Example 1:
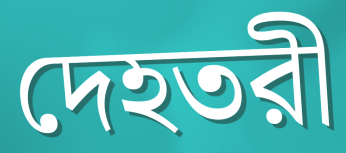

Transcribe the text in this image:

দেহতরী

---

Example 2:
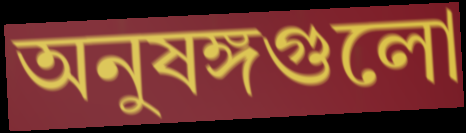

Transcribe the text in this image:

অনুষঙ্গগুলো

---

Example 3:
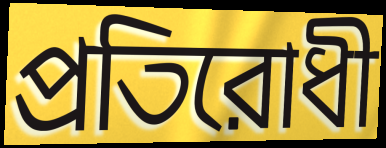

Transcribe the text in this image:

প্রতিরোধী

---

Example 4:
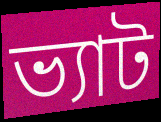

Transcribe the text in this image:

ভ্যাট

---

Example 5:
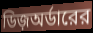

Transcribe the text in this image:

ডিজ়অর্ডারের